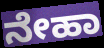
ನೇಹಾ